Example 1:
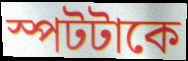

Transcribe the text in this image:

স্পটটাকে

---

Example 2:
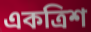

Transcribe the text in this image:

একত্রিশ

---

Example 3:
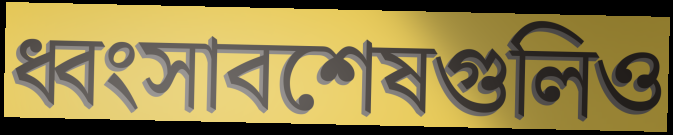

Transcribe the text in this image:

ধ্বংসাবশেষগুলিও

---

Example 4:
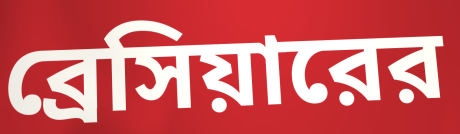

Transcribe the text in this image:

ব্রেসিয়ারের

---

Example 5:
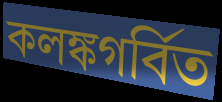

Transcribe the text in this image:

কলঙ্কগর্বিত